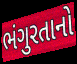
ભંગુરતાનો